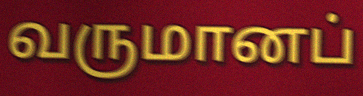
வருமானப்